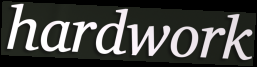
hardwork